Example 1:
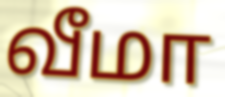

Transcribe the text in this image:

வீமா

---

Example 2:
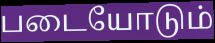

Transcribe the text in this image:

படையோடும்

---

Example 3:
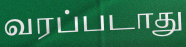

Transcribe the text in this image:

வரப்படாது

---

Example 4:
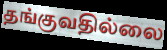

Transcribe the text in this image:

தங்குவதில்லை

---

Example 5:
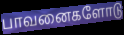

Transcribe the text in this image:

பாவனைகளோடு